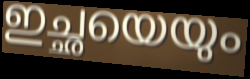
ഇച്ഛയെയും